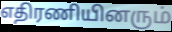
எதிரணியினரும்